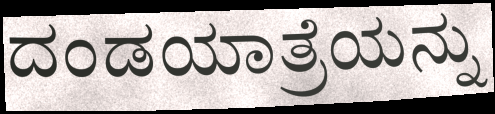
ದಂಡಯಾತ್ರೆಯನ್ನು